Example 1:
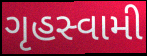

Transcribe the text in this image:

ગૃહસ્વામી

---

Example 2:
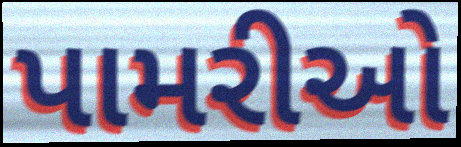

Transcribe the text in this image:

પામરીઓ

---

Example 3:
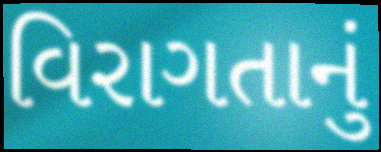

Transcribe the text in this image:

વિરાગતાનું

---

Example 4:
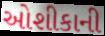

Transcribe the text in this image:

ઓશીકાની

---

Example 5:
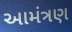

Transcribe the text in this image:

આમંત્રણ